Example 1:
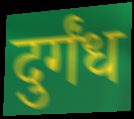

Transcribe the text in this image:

दुर्गंध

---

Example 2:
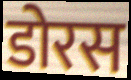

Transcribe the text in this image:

डोरस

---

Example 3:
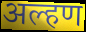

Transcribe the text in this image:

अल्हण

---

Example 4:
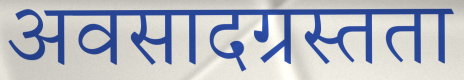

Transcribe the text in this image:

अवसादग्रस्तता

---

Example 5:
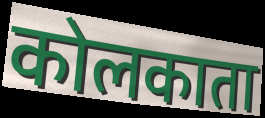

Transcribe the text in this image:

कोलकाता